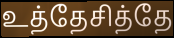
உத்தேசித்தே